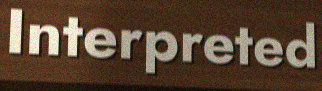
Interpreted